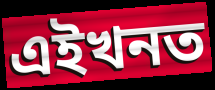
এইখনত